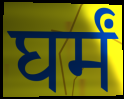
घर्मं